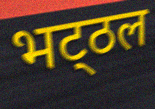
भट्‌ठल